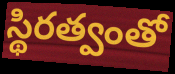
స్థిరత్వంతో